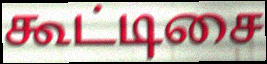
கூட்டிசை